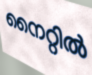
നൈറ്റിൽ